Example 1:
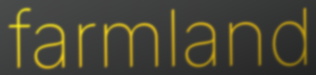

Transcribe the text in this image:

farmland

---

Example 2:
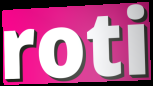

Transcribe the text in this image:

roti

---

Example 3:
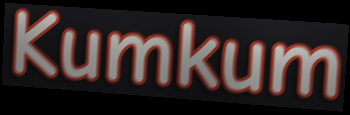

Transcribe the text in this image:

Kumkum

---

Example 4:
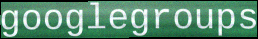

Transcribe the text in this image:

googlegroups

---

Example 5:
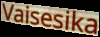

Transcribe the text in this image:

Vaisesika